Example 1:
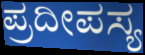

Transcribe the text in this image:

ಪ್ರದೀಪಸ್ಯ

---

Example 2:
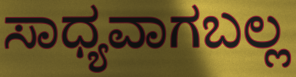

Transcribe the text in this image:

ಸಾಧ್ಯವಾಗಬಲ್ಲ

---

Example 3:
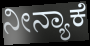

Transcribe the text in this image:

ನೀನ್ಯಾಕೆ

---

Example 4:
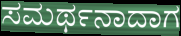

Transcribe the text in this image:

ಸಮರ್ಥನಾದಾಗ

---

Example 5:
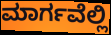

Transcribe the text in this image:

ಮಾರ್ಗವೆಲ್ಲಿ